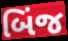
બિંજ